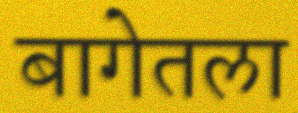
बागेतला